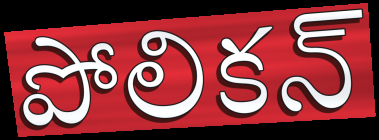
పోలికన్